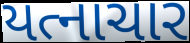
યત્નાચાર